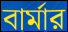
বার্মার